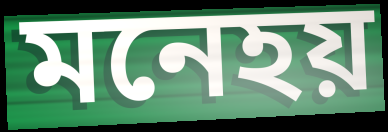
মনেহয়